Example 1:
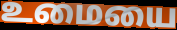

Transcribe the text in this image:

உமையை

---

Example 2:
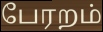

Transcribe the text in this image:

பேரறம்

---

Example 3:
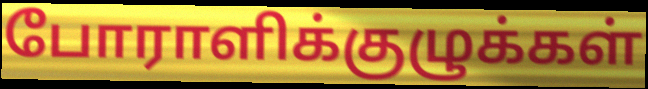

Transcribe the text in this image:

போராளிக்குழுக்கள்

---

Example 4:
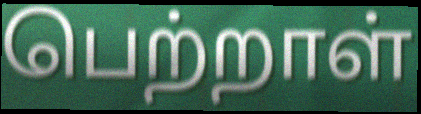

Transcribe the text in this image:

பெற்றாள்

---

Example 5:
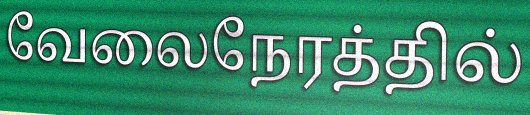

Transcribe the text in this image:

வேலைநேரத்தில்